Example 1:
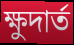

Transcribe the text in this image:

ক্ষুদার্ত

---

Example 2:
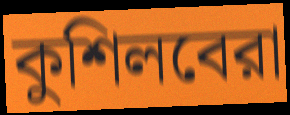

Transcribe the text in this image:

কুশিলবেরা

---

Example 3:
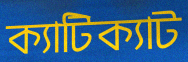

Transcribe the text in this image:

ক্যাটিক্যাট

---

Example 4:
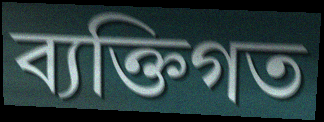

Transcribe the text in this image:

ব্যক্তিগত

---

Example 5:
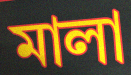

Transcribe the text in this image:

মালা